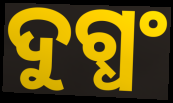
ଦୁଗ୍ଧଂ